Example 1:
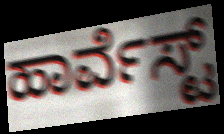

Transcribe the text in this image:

ಹಾರ್ವೆಸ್ಟ್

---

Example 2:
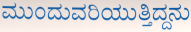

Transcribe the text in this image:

ಮುಂದುವರಿಯುತ್ತಿದ್ದನು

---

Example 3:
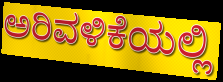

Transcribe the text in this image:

ಅರಿವಳಿಕೆಯಲ್ಲಿ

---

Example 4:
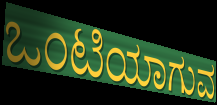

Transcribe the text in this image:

ಒಂಟಿಯಾಗುವ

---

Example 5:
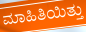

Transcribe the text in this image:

ಮಾಹಿತಿಯಿತ್ತು